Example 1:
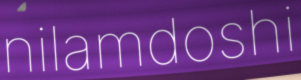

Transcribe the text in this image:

nilamdoshi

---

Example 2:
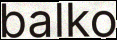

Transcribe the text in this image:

balko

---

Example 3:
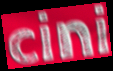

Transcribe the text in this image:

cini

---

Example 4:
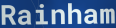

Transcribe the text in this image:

Rainham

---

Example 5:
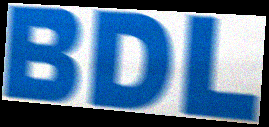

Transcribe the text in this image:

BDL